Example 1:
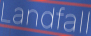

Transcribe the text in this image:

Landfall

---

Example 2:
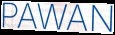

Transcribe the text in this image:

PAWAN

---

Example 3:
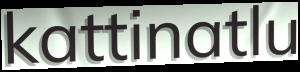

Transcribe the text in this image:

kattinatlu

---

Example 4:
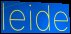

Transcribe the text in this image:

leide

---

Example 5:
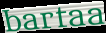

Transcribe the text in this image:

bartaa